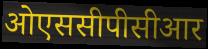
ओएससीपीसीआर